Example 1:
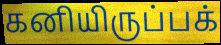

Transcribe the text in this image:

கனியிருப்பக்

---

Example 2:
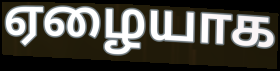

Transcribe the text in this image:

ஏழையாக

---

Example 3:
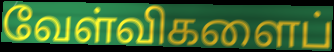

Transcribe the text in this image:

வேள்விகளைப்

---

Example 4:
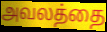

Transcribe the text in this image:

அவலத்தை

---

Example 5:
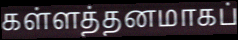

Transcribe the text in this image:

கள்ளத்தனமாகப்